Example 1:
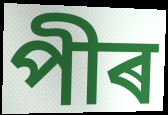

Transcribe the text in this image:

পীৰ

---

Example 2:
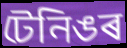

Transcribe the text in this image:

টেনিঙৰ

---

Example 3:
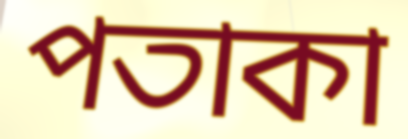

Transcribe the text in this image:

পতাকা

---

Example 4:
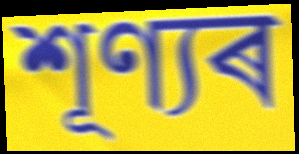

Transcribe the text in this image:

শূণ্যৰ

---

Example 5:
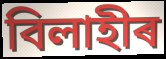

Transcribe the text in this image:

বিলাহীৰ